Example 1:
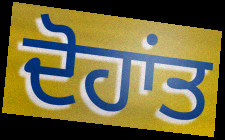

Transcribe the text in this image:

ਦੋਹਾਂਤ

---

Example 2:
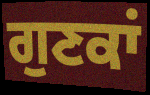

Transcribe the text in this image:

ਗੁਣਕਾਂ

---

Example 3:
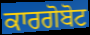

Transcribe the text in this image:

ਕਾਰਗੋਬੋਟ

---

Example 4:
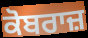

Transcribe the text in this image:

ਕੋਬਰਾਜ਼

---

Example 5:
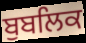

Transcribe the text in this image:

ਬੁਬਲਿਕ